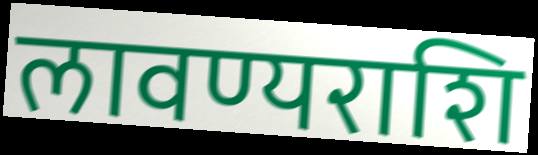
लावण्यराशि